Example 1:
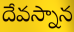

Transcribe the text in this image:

దేవస్నాన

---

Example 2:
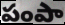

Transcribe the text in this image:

పంపా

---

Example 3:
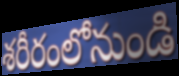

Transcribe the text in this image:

శరీరంలోనుండి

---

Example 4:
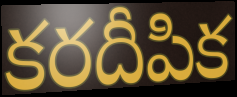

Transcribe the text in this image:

కరదీపిక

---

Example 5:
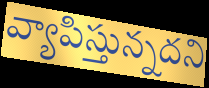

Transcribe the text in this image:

వ్యాపిస్తున్నదని